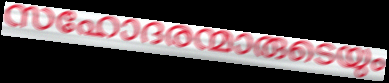
സഹോദരന്മാരുടെയും